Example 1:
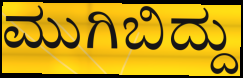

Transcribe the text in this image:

ಮುಗಿಬಿದ್ದು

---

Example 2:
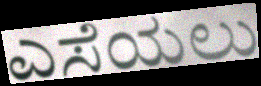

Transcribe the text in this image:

ಎಸೆಯಲು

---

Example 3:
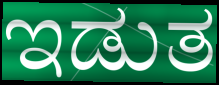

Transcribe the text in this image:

ಇಡುತ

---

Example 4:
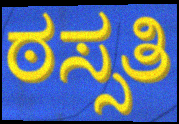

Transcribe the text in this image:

ಠಸ್ಸತಿ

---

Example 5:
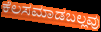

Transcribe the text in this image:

ಕೆಲಸಮಾಡಬಲ್ಲವು